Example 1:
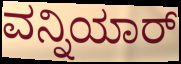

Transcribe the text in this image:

ವನ್ನಿಯಾರ್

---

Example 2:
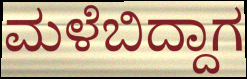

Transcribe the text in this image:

ಮಳೆಬಿದ್ದಾಗ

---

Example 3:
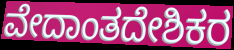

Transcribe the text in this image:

ವೇದಾಂತದೇಶಿಕರ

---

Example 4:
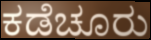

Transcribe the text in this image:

ಕಡೆಚೂರು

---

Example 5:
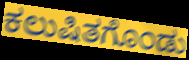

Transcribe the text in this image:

ಕಲುಷಿತಗೊಂಡು